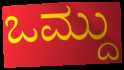
ಒಮ್ದು